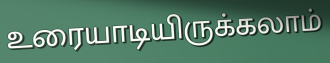
உரையாடியிருக்கலாம்